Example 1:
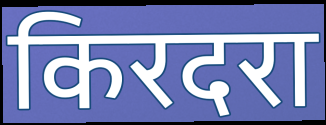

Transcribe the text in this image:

किरदरा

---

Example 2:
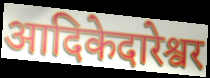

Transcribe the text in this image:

आदिकेदारेश्वर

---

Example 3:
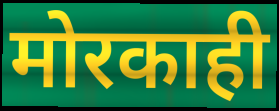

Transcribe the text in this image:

मोरकाही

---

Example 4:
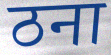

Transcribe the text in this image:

ठना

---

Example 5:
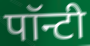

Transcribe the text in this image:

पॉन्टी